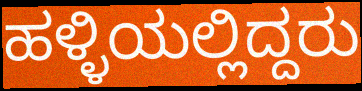
ಹಳ್ಳಿಯಲ್ಲಿದ್ದರು